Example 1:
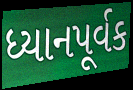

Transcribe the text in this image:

ધ્યાનપૂર્વક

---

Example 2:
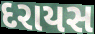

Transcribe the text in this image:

દરાયસ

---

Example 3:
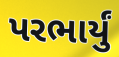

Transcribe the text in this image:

પરભાર્યું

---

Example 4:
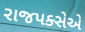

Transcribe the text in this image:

રાજપક્સેએ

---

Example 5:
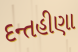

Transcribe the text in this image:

દન્તહીણા